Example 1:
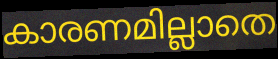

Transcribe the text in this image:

കാരണമില്ലാതെ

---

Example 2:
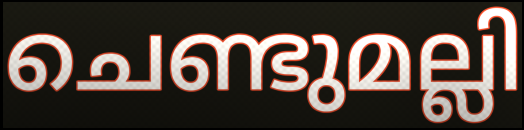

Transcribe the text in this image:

ചെണ്ടുമല്ലി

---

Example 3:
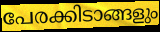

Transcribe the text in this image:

പേരക്കിടാങ്ങളും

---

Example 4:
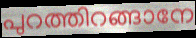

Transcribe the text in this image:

പുറത്തിറങ്ങാനേ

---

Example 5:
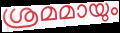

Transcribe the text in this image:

ശ്രമമായും